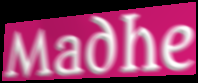
Madhe